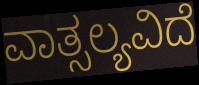
ವಾತ್ಸಲ್ಯವಿದೆ